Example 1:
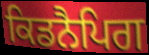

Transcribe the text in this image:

ਕਿਡਨੈਪਿਗ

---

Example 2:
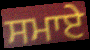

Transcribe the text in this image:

ਸਮਾਏ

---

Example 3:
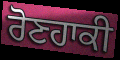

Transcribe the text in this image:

ਰੋਣਹਾਕੀ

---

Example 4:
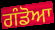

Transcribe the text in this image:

ਗੰਡੋਆ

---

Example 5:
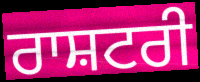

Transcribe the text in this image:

ਰਾਸ਼ਟਰੀ